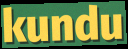
kundu